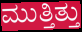
ಮುತ್ತಿತ್ತು